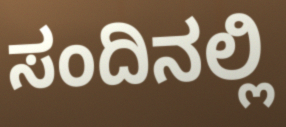
ಸಂದಿನಲ್ಲಿ